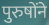
पुरुषोंने